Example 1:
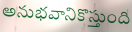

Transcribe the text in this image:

అనుభవానికొస్తుంది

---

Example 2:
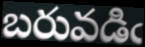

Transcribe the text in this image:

బరువడిఁ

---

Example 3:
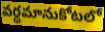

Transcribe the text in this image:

వర్ధమానుకోటలో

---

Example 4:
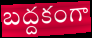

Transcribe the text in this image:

బద్దకంగా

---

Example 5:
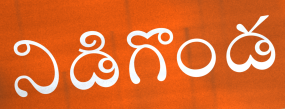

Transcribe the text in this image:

నిడిగొండ